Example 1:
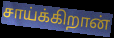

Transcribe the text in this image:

சாய்க்கிறான்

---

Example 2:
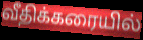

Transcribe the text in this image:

வீதிக்கரையில்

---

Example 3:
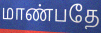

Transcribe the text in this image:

மாண்பதே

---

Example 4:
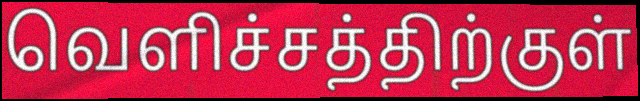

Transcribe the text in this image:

வெளிச்சத்திற்குள்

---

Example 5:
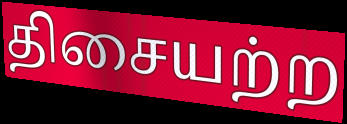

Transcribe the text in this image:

திசையற்ற